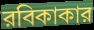
রবিকাকার